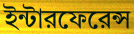
ইন্টারফেরেন্স